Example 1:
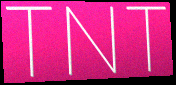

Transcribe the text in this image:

TNT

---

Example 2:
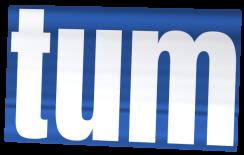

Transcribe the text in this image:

tum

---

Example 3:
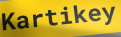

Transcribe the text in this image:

Kartikey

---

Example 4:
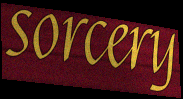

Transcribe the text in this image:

sorcery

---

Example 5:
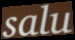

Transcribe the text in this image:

salu